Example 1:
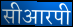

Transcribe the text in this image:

सीआरपी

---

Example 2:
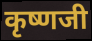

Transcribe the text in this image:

कृष्णजी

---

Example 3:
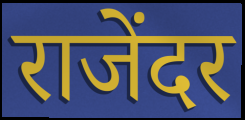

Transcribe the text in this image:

राजेंदर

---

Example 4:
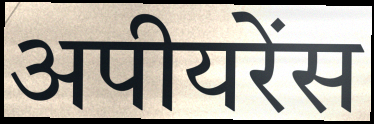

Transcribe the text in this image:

अपीयरेंस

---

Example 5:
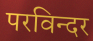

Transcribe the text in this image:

परविन्दर